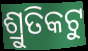
ଶ୍ରୁତିକଟୁ